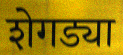
शेगड्या